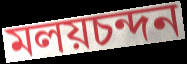
মলয়চন্দন